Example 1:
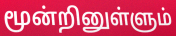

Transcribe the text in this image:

மூன்றினுள்ளும்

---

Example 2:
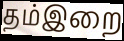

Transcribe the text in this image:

தம்இறை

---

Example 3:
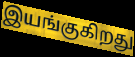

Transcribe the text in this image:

இயங்குகிறது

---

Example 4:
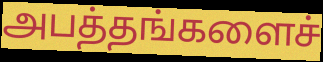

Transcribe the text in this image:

அபத்தங்களைச்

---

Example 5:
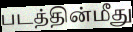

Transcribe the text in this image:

படத்தின்மீது